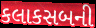
કલાકસબની